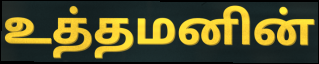
உத்தமனின்